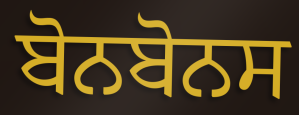
ਬੋਨਬੋਨਸ